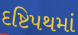
દષ્ટિપથમાં